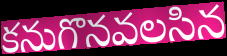
కనుగొనవలసిన